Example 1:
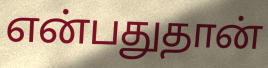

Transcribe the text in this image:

என்பதுதான்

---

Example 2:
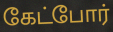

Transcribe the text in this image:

கேட்போர்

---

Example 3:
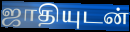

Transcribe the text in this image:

ஜாதியுடன்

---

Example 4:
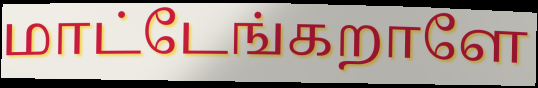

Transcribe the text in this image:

மாட்டேங்கறாளே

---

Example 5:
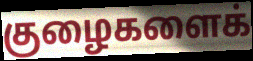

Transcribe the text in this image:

குழைகளைக்